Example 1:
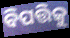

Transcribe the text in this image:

ବିପତ୍ତିକୁ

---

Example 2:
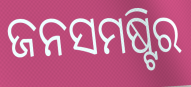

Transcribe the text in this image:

ଜନସମଷ୍ଟିର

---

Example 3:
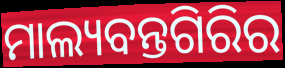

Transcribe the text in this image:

ମାଲ୍ୟବନ୍ତଗିରିର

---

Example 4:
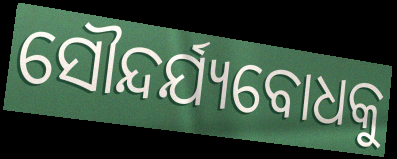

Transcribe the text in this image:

ସୌନ୍ଦର୍ଯ୍ୟବୋଧକୁ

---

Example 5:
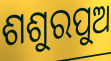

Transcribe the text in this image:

ଶଶୁରପୁଅ